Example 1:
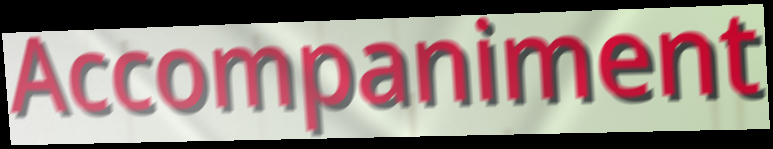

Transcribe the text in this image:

Accompaniment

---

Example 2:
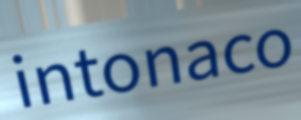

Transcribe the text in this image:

intonaco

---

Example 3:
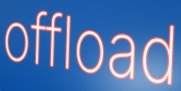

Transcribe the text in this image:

offload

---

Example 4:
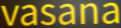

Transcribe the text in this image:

vasana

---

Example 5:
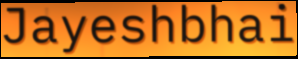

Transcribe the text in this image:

Jayeshbhai